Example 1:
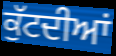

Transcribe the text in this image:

ਕੁੱਟਦੀਆਂ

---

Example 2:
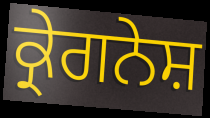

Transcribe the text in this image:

ਕ੍ਰੇਗਨੇਸ਼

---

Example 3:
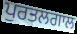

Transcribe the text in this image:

ਪੁਰਤਲਗਾਲ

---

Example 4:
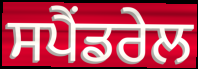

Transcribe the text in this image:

ਸਪੈਂਡਰੇਲ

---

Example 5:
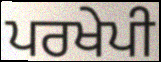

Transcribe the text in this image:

ਪਰਖੇਪੀ